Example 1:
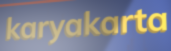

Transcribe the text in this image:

karyakarta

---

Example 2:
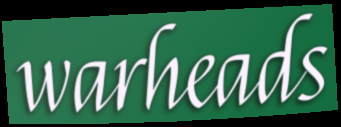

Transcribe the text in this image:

warheads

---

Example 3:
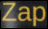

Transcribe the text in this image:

Zap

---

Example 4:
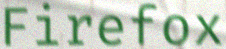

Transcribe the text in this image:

Firefox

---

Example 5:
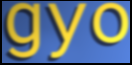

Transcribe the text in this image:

gyo